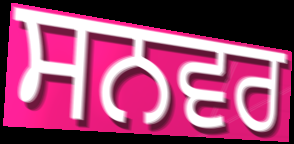
ਸਨਵਰ